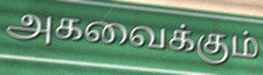
அகவைக்கும்